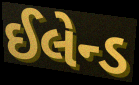
ઈલેન્ડ